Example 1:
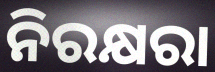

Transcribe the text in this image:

ନିରକ୍ଷରା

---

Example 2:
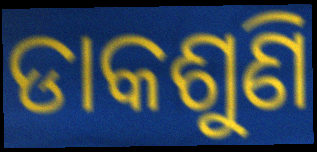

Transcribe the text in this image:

ଡାକଶୁଣି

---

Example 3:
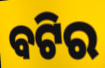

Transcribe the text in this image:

ବଟିର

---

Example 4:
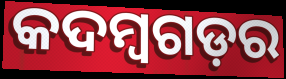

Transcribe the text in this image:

କଦମ୍ବଗଡ଼ର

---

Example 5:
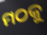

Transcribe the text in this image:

ମଠକୁ